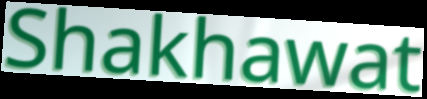
Shakhawat